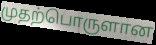
முதற்பொருளான